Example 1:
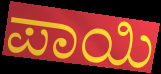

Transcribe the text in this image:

ಪಾಯಿ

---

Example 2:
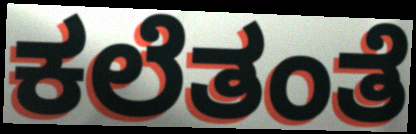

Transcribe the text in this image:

ಕಲೆತಂತೆ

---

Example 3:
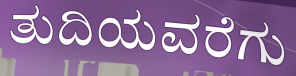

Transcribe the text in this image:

ತುದಿಯವರೆಗು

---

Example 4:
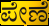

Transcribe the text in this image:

ಪೇಣೆ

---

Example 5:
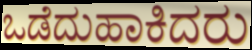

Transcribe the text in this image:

ಒಡೆದುಹಾಕಿದರು